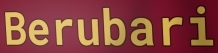
Berubari